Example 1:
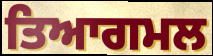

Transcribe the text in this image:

ਤਿਆਗਮਲ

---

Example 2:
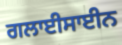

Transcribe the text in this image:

ਗਲਾਈਸਾਈਨ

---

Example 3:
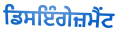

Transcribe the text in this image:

ਡਿਸਇੰਗੇਜ਼ਮੈਂਟ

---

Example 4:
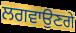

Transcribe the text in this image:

ਲਗਵਾਉਣਗੇ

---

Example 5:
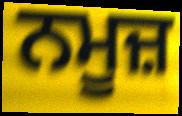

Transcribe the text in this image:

ਨਮੂਜ਼